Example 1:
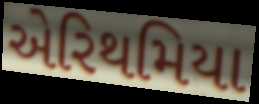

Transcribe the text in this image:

એરિથમિયા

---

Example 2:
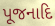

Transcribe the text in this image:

પૂજનાદિ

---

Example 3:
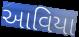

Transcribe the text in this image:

આવિયા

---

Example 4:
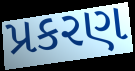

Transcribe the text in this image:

પ્રકરણ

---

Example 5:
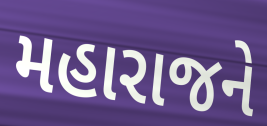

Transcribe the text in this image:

મહારાજને